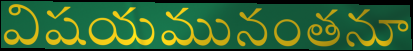
విషయమునంతనూ